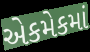
એકમેકમાં